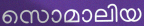
സൊമാലിയ